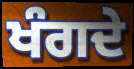
ਖੰਗਦੇ